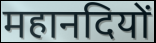
महानदियों